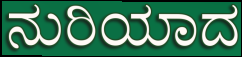
ನುರಿಯಾದ